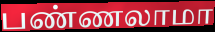
பண்ணலாமா